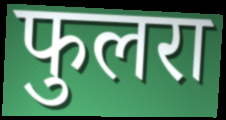
फुलरा